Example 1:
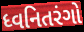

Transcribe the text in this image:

ધ્વનિતરંગો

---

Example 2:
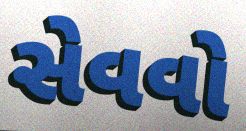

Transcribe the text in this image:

સેવવો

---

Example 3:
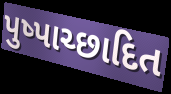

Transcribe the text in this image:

પુષ્પાચ્છાદિત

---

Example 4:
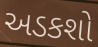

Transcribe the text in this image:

અડકશો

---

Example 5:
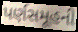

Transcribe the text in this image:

પર્ણસમૂહની